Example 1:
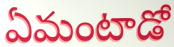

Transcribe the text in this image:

ఏమంటాడో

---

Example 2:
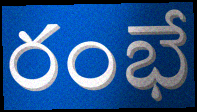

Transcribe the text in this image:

రంభే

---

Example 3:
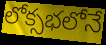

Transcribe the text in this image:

లోక్సభలోనే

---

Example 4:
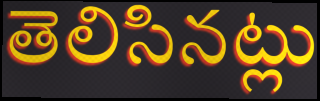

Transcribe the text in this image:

తెలిసినట్లు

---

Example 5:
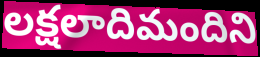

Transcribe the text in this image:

లక్షలాదిమందిని